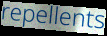
repellents